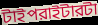
টাইপরাইটারটা